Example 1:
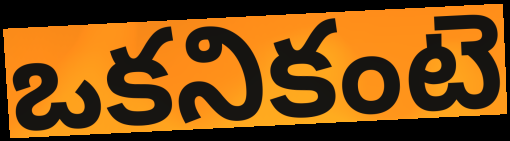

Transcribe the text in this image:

ఒకనికంటె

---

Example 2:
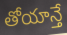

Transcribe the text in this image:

తోయాన్తే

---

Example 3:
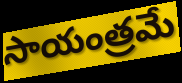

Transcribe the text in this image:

సాయంత్రమే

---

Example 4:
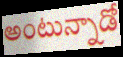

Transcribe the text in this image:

అంటున్నాడో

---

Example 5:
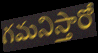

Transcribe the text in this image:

గమనిస్తారో